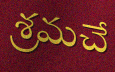
శ్రమచే